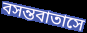
বসন্তবাতাসে